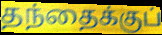
தந்தைக்குப்